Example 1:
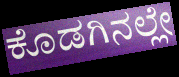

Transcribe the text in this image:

ಕೊಡಗಿನಲ್ಲೇ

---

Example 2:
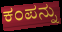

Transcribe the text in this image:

ಕಂಪನ್ನು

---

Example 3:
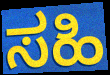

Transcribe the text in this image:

ಸಹಿ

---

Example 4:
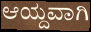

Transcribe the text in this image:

ಆಯ್ದವಾಗಿ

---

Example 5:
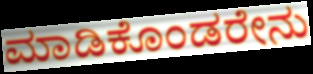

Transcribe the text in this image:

ಮಾಡಿಕೊಂಡರೇನು